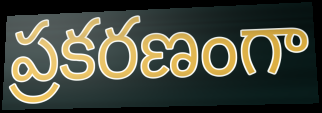
ప్రకరణంగా